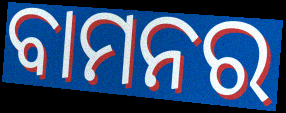
ବାମନର